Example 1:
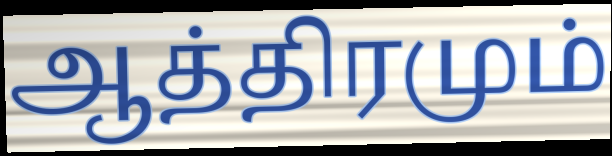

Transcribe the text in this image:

ஆத்திரமும்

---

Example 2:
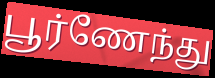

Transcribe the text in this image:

பூர்ணேந்து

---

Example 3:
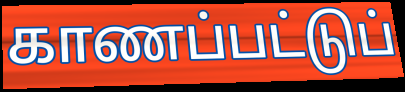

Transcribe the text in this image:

காணப்பட்டுப்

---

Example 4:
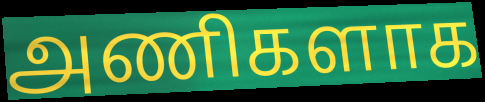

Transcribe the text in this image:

அணிகளாக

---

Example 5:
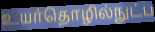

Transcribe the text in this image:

உயர்தொழில்நுட்ப